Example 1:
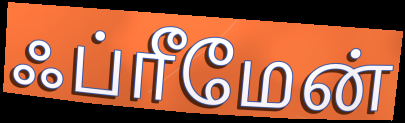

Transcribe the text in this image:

ஃப்ரீமேன்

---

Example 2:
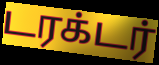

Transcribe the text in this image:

டரக்டர்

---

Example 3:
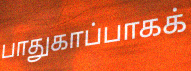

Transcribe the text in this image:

பாதுகாப்பாகக்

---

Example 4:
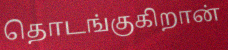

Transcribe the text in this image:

தொடங்குகிறான்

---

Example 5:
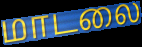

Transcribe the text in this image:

மாடலை